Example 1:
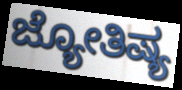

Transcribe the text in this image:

ಜ್ಯೋತಿಷ್ಯ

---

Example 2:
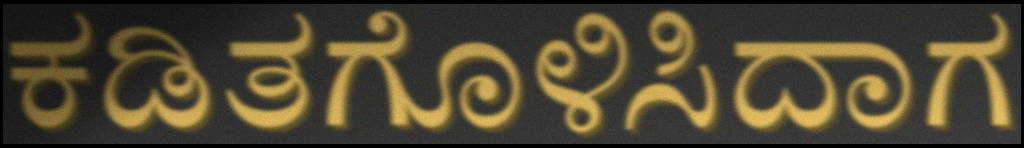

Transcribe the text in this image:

ಕಡಿತಗೊಳಿಸಿದಾಗ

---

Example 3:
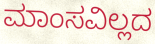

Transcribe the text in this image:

ಮಾಂಸವಿಲ್ಲದ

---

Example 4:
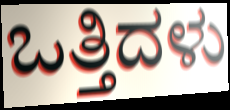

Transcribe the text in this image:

ಒತ್ತಿದಳು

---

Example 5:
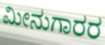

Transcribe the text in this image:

ಮೀನುಗಾರರ